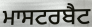
ਮਾਸਟਰਬੈਟ